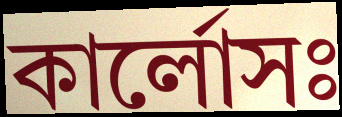
কার্লোসঃ